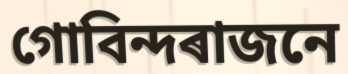
গোবিন্দৰাজনে